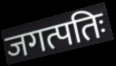
जगत्पतिः